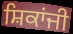
ਸ਼ਿਕਾਂਜੀ